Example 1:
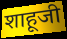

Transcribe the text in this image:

शाहूजी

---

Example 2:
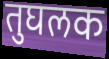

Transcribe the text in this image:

तुघलक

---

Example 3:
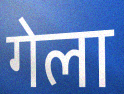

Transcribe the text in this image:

गेला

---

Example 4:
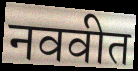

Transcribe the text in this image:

नववीत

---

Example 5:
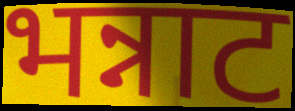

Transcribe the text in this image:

भन्नाट